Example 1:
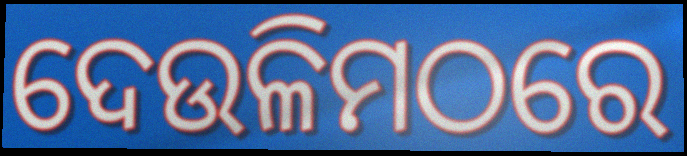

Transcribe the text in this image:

ଦେଉଳିମଠରେ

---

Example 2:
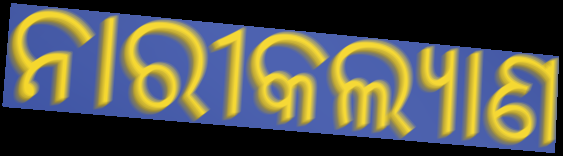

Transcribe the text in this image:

ନାରୀକଲ୍ୟାଣ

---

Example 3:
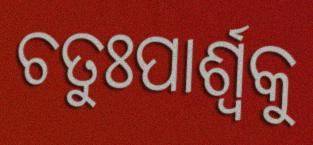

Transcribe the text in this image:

ଚତୁଃପାର୍ଶ୍ୱକୁ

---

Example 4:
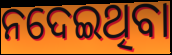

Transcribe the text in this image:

ନଦେଇଥିବା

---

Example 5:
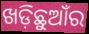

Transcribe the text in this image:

ଖଡ଼ିଛୁଆଁର